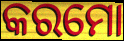
କରମୋ